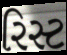
રિસ્ટ